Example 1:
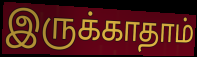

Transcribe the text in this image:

இருக்காதாம்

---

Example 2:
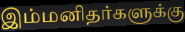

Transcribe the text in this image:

இம்மனிதர்களுக்கு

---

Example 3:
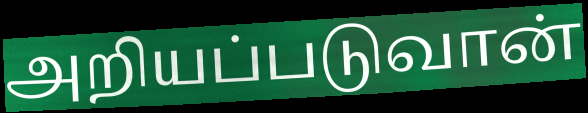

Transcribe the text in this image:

அறியப்படுவான்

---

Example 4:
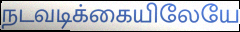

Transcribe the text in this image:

நடவடிக்கையிலேயே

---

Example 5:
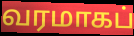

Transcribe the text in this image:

வரமாகப்